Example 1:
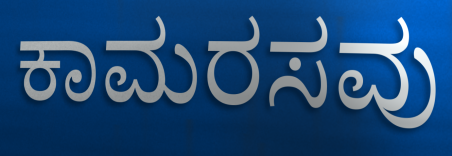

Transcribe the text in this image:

ಕಾಮರಸವು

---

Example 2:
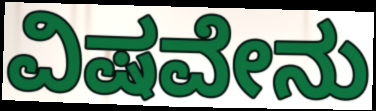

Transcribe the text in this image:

ವಿಷವೇನು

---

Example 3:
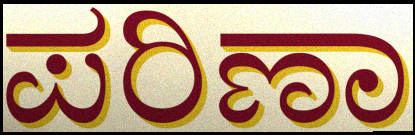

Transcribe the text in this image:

ಪರಿಣಾ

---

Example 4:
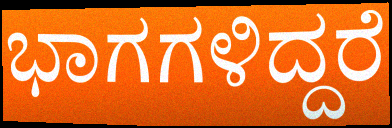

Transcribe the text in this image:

ಭಾಗಗಳಿದ್ದರೆ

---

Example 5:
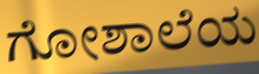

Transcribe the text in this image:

ಗೋಶಾಲೆಯ